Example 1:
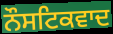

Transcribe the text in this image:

ਨੌਸਟਿਕਵਾਦ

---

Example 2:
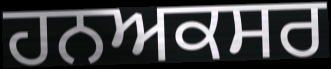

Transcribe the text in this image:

ਹਨਅਕਸਰ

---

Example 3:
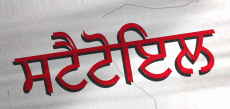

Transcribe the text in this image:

ਸਟੈਟੋਇਲ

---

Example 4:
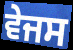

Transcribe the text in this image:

ਵੇਜਸ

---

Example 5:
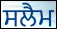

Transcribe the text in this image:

ਸਲੈਮ